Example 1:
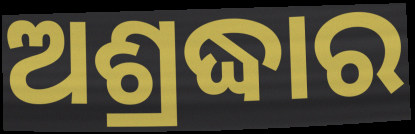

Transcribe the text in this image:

ଅଶ୍ରଦ୍ଧାର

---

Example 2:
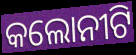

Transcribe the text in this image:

କଲୋନୀଟି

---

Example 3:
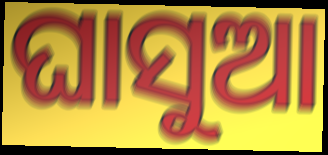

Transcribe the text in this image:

ଘାସୁଆ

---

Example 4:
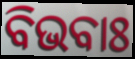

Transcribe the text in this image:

ବିଭବାଃ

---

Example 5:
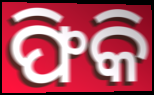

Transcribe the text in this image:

ଫିକି